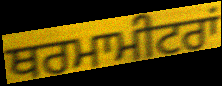
ਥਰਮਾਮੀਟਰਾਂ